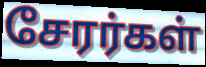
சேரர்கள்